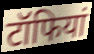
टॉफियां